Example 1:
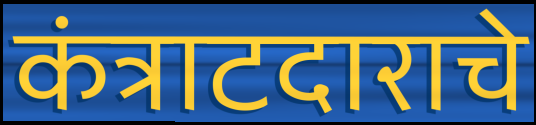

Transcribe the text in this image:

कंत्राटदाराचे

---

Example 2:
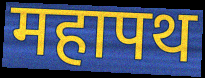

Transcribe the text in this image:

महापथ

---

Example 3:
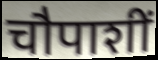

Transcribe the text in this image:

चौपाशीं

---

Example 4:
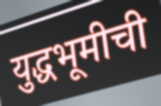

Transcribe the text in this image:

युद्धभूमीची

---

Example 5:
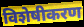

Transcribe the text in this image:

विशेषीकरण